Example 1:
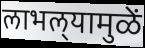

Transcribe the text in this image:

लाभल्यामुळें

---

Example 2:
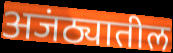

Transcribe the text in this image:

अजंठ्यातील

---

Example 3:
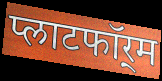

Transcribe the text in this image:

प्लाटफॉर्म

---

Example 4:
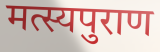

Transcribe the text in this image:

मत्स्यपुराण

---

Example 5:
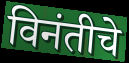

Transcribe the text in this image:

विनंतीचे